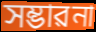
সম্ভাৱনা